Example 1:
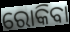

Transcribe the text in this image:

ରୋକିବା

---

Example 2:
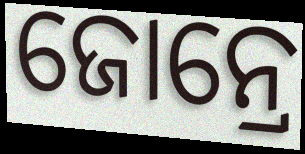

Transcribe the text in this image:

ଜୋନ୍ରେ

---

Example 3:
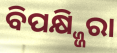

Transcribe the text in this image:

ବିପକ୍ଷ୍ଜ୍ଜିରା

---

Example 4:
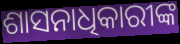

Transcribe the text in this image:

ଶାସନାଧିକାରୀଙ୍କ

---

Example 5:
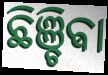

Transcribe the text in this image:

ଛିଞ୍ଚିଵା